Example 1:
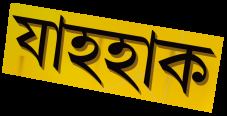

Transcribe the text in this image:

যাহহাক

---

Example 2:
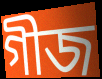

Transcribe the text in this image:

গীজ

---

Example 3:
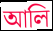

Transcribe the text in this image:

আলি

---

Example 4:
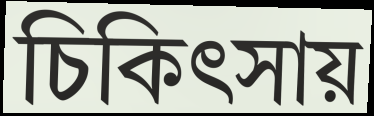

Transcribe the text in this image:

চিকিৎসায়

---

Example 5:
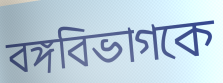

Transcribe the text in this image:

বঙ্গবিভাগকে